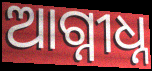
ଆଗ୍ନୀଧ୍ନ